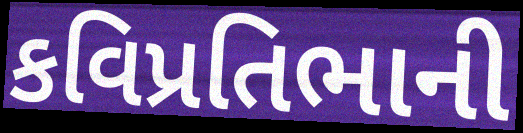
કવિપ્રતિભાની